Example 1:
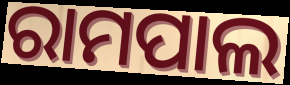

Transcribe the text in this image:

ରାମପାଲ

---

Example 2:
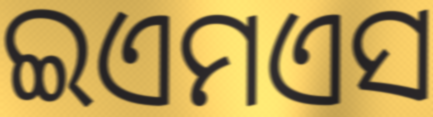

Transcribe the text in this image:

ଇଏମଏସ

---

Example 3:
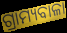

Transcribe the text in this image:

ଗ୍ରାମ୍ୟବାଳା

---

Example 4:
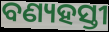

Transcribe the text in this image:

ବଣ୍ୟହସ୍ତୀ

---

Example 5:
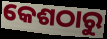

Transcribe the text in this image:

କେଶଠାରୁ